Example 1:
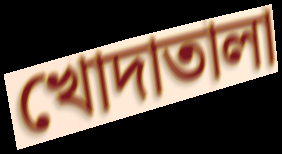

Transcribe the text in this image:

খোদাতালা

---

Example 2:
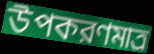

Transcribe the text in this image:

উপকরণমাত্র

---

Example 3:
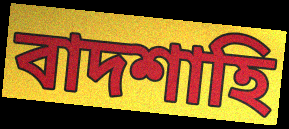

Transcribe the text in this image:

বাদশাহি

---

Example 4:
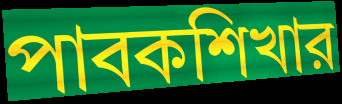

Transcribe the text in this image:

পাবকশিখার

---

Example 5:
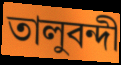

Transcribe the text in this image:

তালুবন্দী